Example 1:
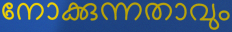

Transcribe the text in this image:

നോക്കുന്നതാവും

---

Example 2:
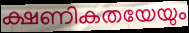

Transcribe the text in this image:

ക്ഷണികതയേയും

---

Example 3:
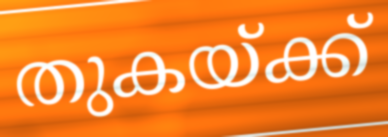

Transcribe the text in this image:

തുകയ്ക്ക്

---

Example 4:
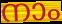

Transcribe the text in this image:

നാം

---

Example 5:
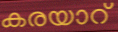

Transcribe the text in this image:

കരയാറ്